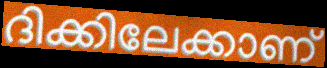
ദിക്കിലേക്കാണ്